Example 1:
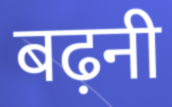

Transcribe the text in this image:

बढ़नी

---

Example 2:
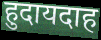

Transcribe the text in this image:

हुदायदाह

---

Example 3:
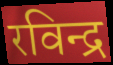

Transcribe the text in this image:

रविन्द्र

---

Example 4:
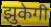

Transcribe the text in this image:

झुकेगी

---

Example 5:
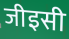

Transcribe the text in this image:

जीइसी